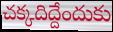
చక్కదిద్దేందుకు